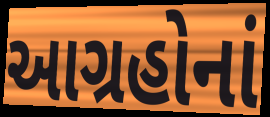
આગ્રહોનાં